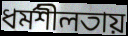
ধর্মশীলতায়